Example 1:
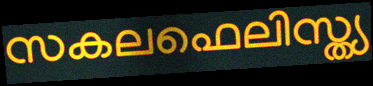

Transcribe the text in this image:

സകലഫെലിസ്ത്യ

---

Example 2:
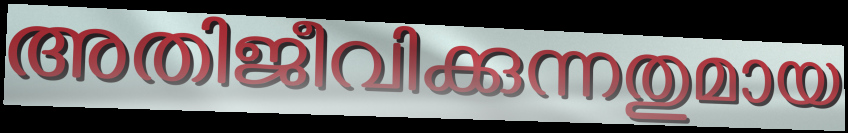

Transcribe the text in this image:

അതിജീവിക്കുന്നതുമായ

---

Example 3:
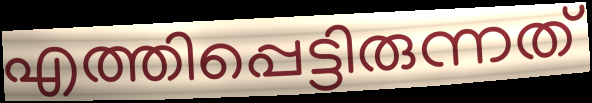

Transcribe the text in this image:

എത്തിപ്പെട്ടിരുന്നത്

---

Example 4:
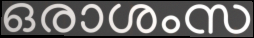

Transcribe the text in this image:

ഒരാശംസ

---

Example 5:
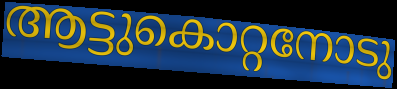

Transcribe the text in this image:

ആട്ടുകൊറ്റനോടു